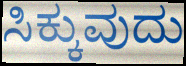
ಸಿಕ್ಕುವುದು